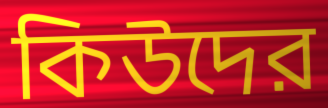
কিউদের